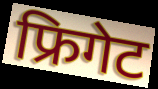
फ्रिगेट